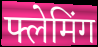
फ्लेमिंग